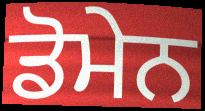
ਡੋਮੇਨ